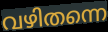
വഴിതന്നെ